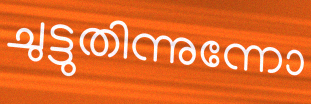
ചുട്ടുതിന്നുന്നോ